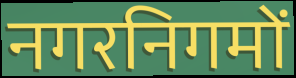
नगरनिगमों